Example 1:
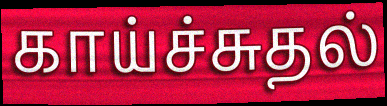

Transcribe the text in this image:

காய்ச்சுதல்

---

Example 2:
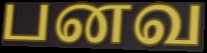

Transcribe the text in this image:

பனவ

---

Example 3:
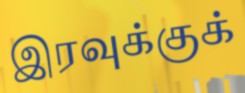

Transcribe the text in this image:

இரவுக்குக்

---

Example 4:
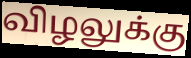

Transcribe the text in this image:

விழலுக்கு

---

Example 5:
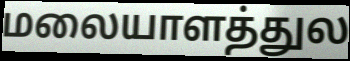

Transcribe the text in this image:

மலையாளத்துல